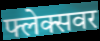
फ्लेक्सवर